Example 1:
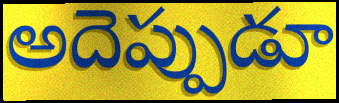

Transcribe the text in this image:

అదెప్పుడూ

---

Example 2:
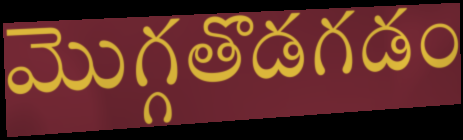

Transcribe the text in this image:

మొగ్గతొడగడం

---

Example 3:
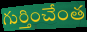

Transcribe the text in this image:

గుర్తించేంత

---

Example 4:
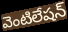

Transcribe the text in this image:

వెంటిలేషన్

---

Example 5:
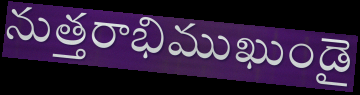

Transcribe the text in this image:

నుత్తరాభిముఖుండై